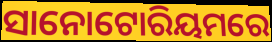
ସାନୋଟୋରିୟମରେ